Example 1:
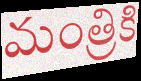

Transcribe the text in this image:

మంత్రికి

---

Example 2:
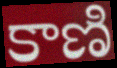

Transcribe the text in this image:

కాణి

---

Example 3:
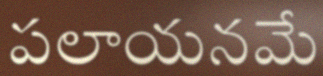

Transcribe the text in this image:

పలాయనమే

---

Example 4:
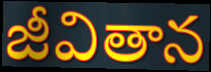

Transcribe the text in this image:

జీవితాన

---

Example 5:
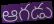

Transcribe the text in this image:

ఆగడు